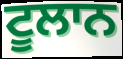
ਟੂਲਾਨ